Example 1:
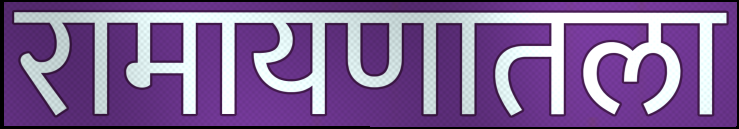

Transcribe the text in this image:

रामायणातला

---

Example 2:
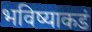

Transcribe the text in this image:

भविष्याकडं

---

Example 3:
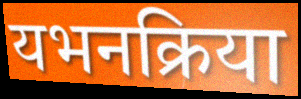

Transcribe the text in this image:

यभनक्रिया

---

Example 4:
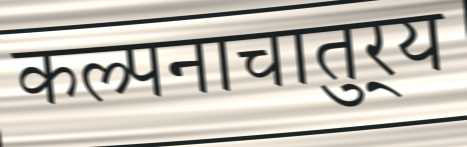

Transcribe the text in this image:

कल्पनाचातुर्य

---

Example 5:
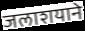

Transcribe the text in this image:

जलाशयाने